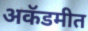
अकॅडमीत